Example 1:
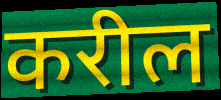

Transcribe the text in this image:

करील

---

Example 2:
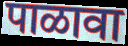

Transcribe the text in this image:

पाळावा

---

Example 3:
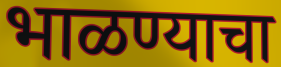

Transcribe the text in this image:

भाळण्याचा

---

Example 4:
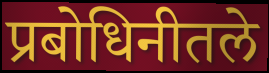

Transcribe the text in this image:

प्रबोधिनीतले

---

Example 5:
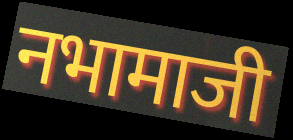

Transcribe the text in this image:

नभामाजी